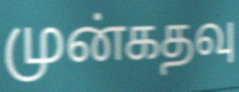
முன்கதவு